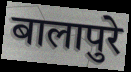
बालापुरे